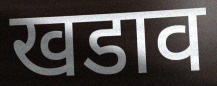
खडाव